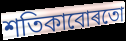
শতিকাবোৰতো